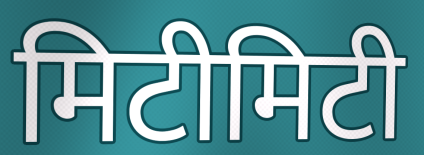
मिटीमिटी